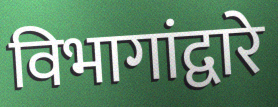
विभागांद्वारे